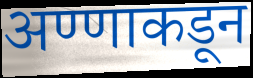
अण्णाकडून